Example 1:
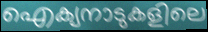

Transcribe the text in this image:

ഐക്യനാടുകളിലെ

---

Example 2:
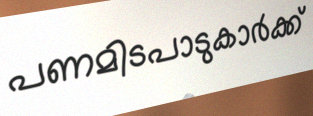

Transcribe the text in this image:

പണമിടപാടുകാർക്ക്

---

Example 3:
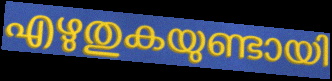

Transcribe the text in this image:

എഴുതുകയുണ്ടായി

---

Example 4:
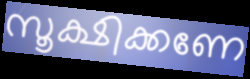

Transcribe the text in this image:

സൂക്ഷിക്കണേ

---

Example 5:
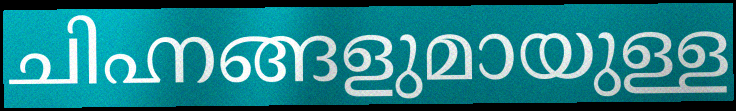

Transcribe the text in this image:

ചിഹ്നങ്ങളുമായുള്ള